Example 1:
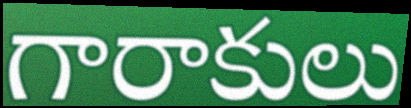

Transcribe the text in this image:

గారాకులు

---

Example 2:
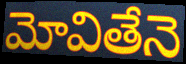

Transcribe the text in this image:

మోవితేనె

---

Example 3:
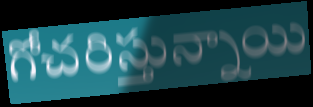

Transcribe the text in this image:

గోచరిస్తున్నాయి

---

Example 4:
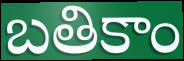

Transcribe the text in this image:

బతికాం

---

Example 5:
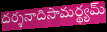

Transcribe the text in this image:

దర్శనాదిసామర్థ్యమ్